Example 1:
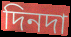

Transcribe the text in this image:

দিনদা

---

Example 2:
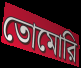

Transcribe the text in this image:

তোমোরি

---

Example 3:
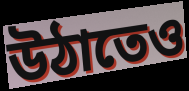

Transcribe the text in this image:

উঠাতেও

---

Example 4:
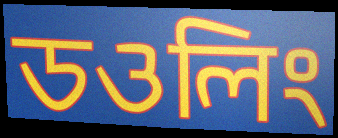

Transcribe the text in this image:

ডওলিং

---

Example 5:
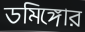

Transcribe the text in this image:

ডমিঙ্গোর